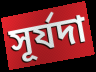
সূর্যদা